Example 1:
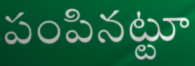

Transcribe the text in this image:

పంపినట్టూ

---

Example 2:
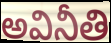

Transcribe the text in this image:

అవినీతి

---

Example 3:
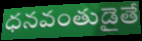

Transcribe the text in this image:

ధనవంతుడైతే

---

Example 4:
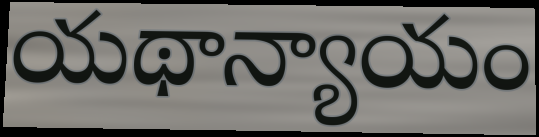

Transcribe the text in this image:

యథాన్యాయం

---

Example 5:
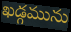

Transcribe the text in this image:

ఖడ్గమును